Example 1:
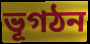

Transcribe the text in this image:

ভূগঠন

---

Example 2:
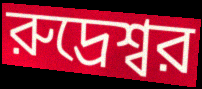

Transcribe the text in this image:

রুদ্রেশ্বর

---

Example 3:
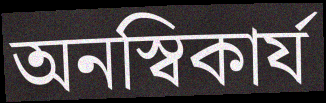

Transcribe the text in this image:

অনস্বিকার্য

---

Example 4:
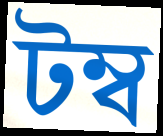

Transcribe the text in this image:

টম্ব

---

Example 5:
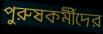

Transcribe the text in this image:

পুরুষকর্মীদের